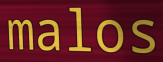
malos